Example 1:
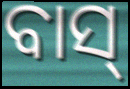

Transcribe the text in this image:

ବାସ୍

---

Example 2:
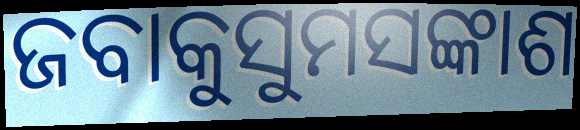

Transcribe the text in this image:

ଜବାକୁସୁମସଙ୍କାଶ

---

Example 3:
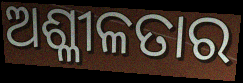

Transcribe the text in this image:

ଅଶ୍ଳୀଳତାର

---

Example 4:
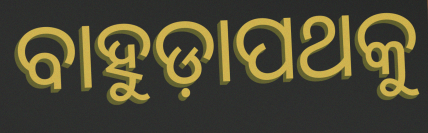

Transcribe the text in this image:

ବାହୁଡ଼ାପଥକୁ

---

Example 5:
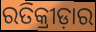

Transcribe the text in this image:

ରତିକ୍ରୀଡ଼ାର